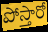
పోస్తారో